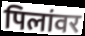
पिलांवर